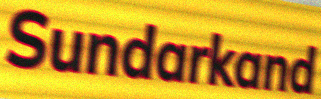
Sundarkand